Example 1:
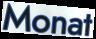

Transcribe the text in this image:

Monat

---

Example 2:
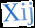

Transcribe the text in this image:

Xij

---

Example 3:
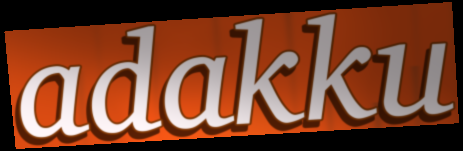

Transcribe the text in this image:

adakku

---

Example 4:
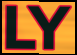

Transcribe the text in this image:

LY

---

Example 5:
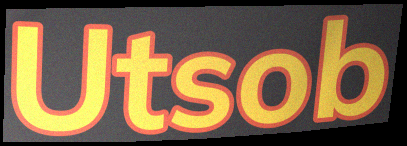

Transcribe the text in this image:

Utsob